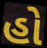
હો